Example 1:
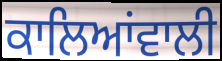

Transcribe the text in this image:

ਕਾਲਿਆਂਵਾਲੀ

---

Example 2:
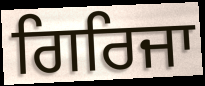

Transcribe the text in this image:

ਗਿਰਿਜਾ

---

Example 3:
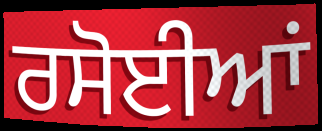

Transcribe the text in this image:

ਰਸੋਈਆਂ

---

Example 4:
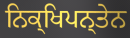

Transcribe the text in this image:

ਨਿਕ੍ਖਿਪਨ੍ਤੇਨ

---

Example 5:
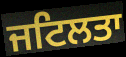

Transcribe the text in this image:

ਜਟਿਲਤਾ